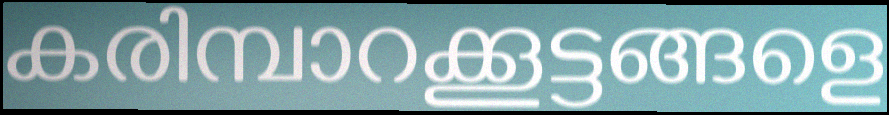
കരിമ്പാറക്കൂട്ടങ്ങളെ